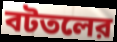
বটতলের